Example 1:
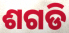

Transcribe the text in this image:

ଶଗଡି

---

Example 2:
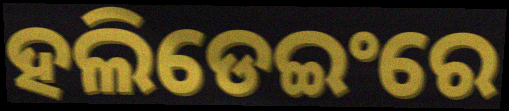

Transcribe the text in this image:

ହଲିଡେଇଂରେ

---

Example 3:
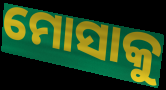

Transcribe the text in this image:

ମୋସାକୁ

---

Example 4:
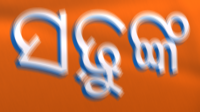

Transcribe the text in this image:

ସଢ଼ୁଙ୍କ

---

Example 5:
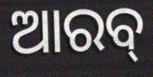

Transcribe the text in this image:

ଆରବ୍